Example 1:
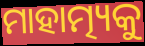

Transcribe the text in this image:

ମାହାତ୍ମ୍ୟକୁ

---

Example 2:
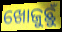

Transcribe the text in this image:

ଖୋଜୁଛୁଁ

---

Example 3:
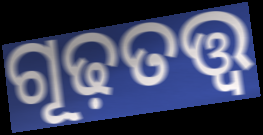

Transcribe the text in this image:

ଗୂଢ଼ତତ୍ତ୍ୱ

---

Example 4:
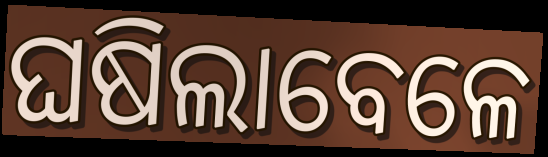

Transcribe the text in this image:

ଘଷିଲାବେଳେ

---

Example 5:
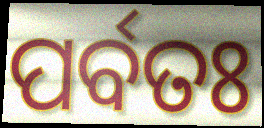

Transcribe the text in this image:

ପର୍ବତଃ